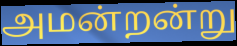
அமன்றன்று